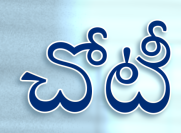
చోటీ